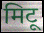
मिटू